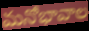
మనోభావాల